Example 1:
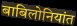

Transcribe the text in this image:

बाबिलोनियांत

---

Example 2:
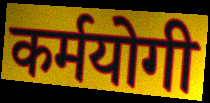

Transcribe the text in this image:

कर्मयोगी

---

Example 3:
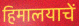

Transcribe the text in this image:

हिमालयाचें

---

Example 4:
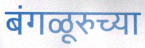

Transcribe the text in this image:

बंगळूरुच्या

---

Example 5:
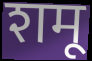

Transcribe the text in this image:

शमू